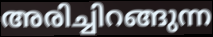
അരിച്ചിറങ്ങുന്ന